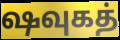
ஷவுகத்